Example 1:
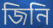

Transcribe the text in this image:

জিনি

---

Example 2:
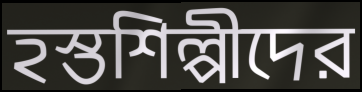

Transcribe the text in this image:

হস্তশিল্পীদের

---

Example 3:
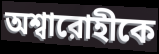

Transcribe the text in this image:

অশ্বারোহীকে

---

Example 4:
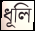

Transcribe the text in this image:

ধূলি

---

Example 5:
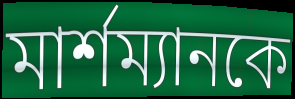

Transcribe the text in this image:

মার্শম্যানকে